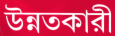
উন্নতকারী